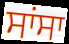
ਸਾਂਸਾ